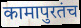
कामापुरतंच